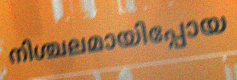
നിശ്ചലമായിപ്പോയ